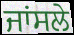
ਜਾਂਸਲੇ